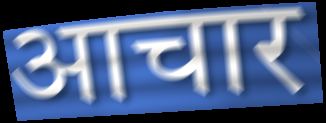
आचार